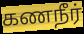
கணநீர்